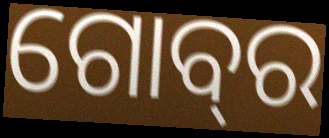
ଗୋବ୍‌ର